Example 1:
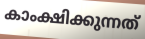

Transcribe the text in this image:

കാംക്ഷിക്കുന്നത്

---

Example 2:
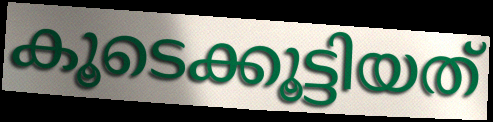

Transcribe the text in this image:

കൂടെക്കൂട്ടിയത്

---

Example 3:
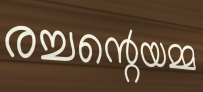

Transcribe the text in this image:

രച്ചന്റെയമ്മ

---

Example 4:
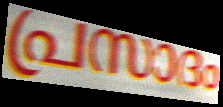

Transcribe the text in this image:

പ്രസാദം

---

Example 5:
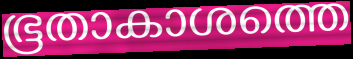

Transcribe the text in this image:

ഭൂതാകാശത്തെ